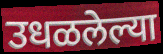
उधळलेल्या